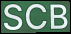
SCB